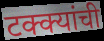
टक्क्यांची